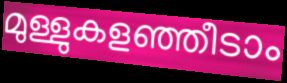
മുള്ളുകളഞ്ഞീടാം